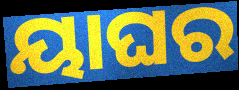
ୟାଘର